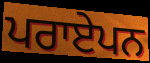
ਪਰਾਏਪਨ